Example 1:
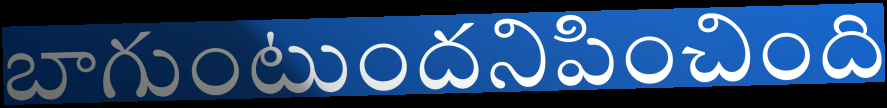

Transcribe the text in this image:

బాగుంటుందనిపించింది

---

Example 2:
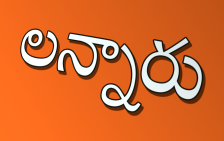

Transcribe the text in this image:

లన్నారు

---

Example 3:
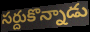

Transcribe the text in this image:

సర్దుకొన్నాడు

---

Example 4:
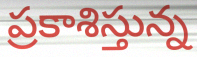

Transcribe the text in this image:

ప్రకాశిస్తున్న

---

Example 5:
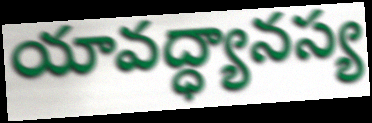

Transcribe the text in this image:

యావద్ధ్యానస్య